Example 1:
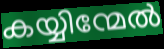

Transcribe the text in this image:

കയ്യിന്മേൽ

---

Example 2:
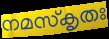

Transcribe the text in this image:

നമസ്കൃതഃ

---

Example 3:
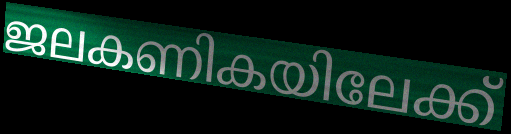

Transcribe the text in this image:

ജലകണികയിലേക്ക്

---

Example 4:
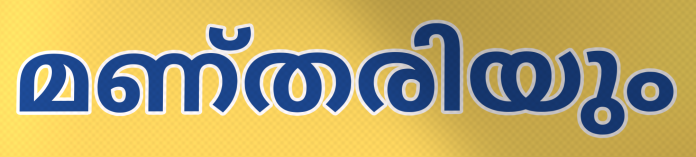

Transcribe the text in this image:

മണ്തരിയും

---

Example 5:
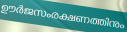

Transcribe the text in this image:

ഊർജസംരക്ഷണത്തിനും